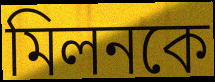
মিলনকে